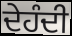
ਦੇਹੰਦੀ